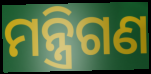
ମନ୍ତ୍ରିଗଣ